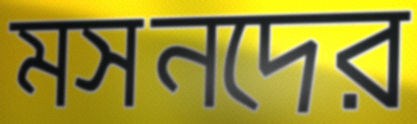
মসনদের